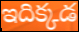
ఇదిక్కడ